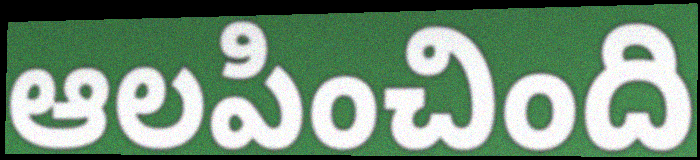
ఆలపించింది